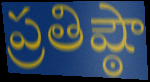
ప్రతిష్ఠౌ